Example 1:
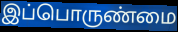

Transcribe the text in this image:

இப்பொருண்மை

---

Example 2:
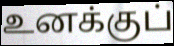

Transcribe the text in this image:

உனக்குப்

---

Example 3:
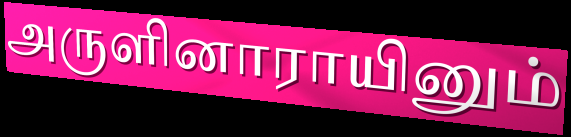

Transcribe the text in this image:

அருளினாராயினும்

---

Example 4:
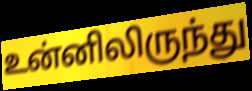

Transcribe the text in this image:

உன்னிலிருந்து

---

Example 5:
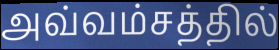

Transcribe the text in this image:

அவ்வம்சத்தில்